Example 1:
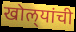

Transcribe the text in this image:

खोल्यांची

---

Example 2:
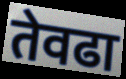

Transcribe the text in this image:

तेवढा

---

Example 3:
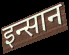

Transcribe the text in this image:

इन्सान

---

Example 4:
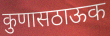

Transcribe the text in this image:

कुणासठाऊक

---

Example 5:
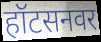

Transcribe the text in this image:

हॉटसनवर